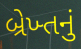
બ્રેખ્તનું